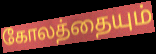
கோலத்தையும்